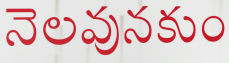
నెలవునకుం